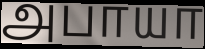
அபாயா